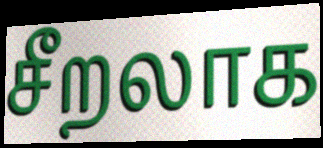
சீறலாக